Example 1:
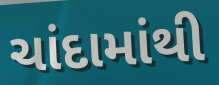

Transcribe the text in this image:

ચાંદામાંથી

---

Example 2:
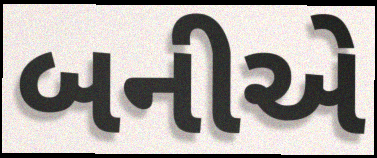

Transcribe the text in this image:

બનીએ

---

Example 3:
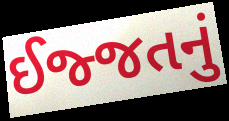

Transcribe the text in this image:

ઈજ્જતનું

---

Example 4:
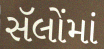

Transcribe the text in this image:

સૅલોંમાં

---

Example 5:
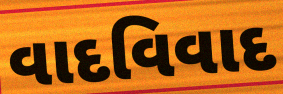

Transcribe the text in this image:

વાદવિવાદ